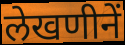
लेखणीनें